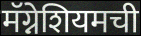
मॅग्नेशियमची